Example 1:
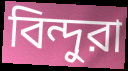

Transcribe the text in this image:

বিন্দুরা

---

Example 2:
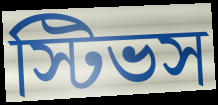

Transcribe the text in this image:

স্টিভস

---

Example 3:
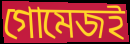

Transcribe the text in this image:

গোমেজই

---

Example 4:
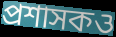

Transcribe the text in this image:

প্রশাসকও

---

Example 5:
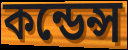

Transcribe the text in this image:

কন্ডেন্স